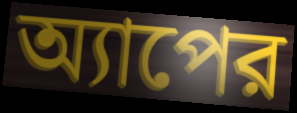
অ্যাপের